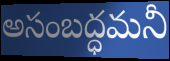
అసంబద్ధమనీ